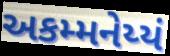
અકમ્મનેય્યં